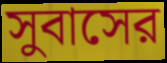
সুবাসের